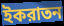
ইকরাতন